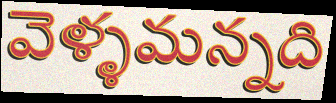
వెళ్ళమన్నది